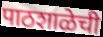
पाठशाळेची